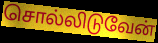
சொல்லிடுவேன்